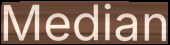
Median